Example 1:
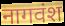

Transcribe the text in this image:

नागवंश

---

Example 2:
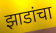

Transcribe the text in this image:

झाडांचा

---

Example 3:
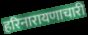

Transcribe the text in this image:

हरिनारायणाचारी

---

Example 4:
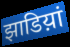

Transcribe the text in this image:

झाडिय़ां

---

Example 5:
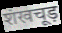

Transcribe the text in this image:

शंखचूड़